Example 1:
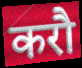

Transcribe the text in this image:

करौ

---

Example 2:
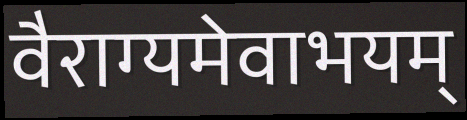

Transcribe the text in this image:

वैराग्यमेवाभयम्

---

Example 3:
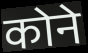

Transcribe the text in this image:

कोने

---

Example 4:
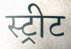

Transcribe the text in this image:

स्ट्रीट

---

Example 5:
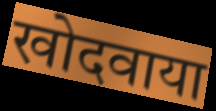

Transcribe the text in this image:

खोदवाया